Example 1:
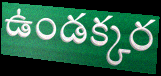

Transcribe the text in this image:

ఉండక్కర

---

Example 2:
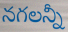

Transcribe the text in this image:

నగలన్నీ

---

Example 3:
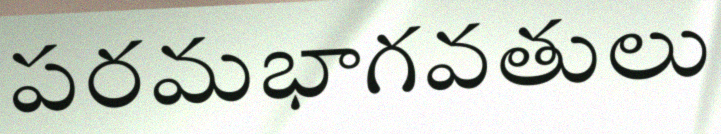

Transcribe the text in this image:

పరమభాగవతులు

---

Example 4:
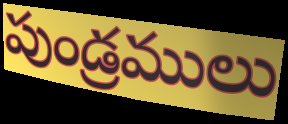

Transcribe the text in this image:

పుండ్రములు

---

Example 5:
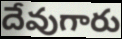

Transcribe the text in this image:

దేవుగారు